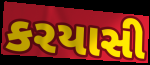
કરયાસી